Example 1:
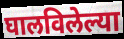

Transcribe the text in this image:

घालविलेल्या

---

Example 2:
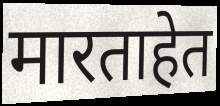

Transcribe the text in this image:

मारताहेत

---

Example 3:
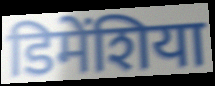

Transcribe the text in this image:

डिमेंशिया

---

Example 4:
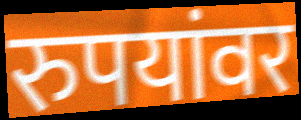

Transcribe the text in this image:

रुपयांवर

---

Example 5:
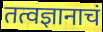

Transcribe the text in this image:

तत्वज्ञानाचं